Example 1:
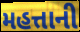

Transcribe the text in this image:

મહત્તાની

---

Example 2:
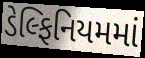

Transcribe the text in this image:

ડેલ્ફિનિયમમાં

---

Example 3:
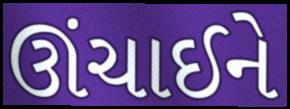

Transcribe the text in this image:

ઊંચાઈને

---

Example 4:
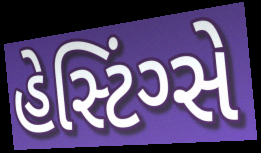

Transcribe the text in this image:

હેસ્ટિંગ્સે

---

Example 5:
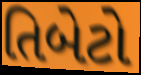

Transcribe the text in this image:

તિબેટો